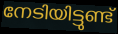
നേടിയിട്ടുണ്ട്